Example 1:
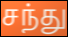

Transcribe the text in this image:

சந்து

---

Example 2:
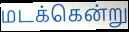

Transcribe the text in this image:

மடக்கென்று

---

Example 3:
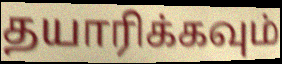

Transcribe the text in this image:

தயாரிக்கவும்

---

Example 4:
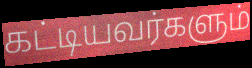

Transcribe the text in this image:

கட்டியவர்களும்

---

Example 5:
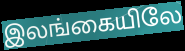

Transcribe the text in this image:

இலங்கையிலே